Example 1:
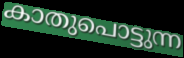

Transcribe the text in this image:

കാതുപൊട്ടുന്ന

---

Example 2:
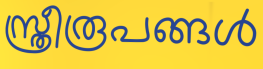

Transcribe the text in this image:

സ്ത്രീരൂപങ്ങൾ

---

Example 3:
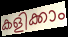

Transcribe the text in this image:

കളിക്കാം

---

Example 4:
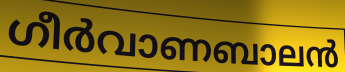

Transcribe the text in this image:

ഗീർവാണബാലൻ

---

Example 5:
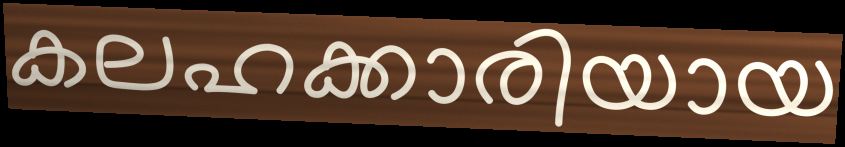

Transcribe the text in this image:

കലഹക്കാരിയായ